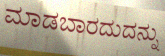
ಮಾಡಬಾರದುದನ್ನು